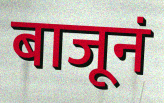
बाजूनं